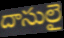
దాసులై